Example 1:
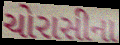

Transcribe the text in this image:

ચોરાસીના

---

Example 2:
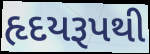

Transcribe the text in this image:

હૃદયરૂપથી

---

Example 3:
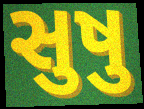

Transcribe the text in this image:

સુષુ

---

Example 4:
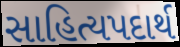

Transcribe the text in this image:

સાહિત્યપદાર્થ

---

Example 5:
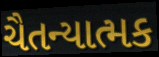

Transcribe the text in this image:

ચૈતન્યાત્મક